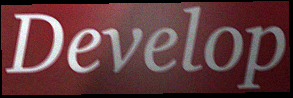
Develop